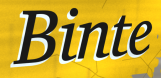
Binte